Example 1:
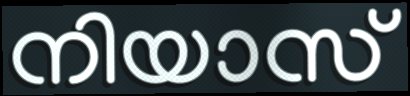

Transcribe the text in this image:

നിയാസ്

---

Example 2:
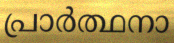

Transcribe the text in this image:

പ്രാർത്ഥനാ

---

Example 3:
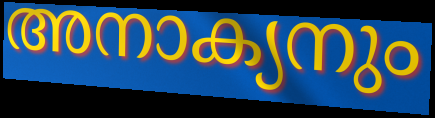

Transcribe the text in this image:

അനാക്യനും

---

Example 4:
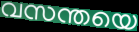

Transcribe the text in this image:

വസന്തയെ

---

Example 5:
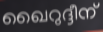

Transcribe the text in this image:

ഖൈറുദ്ദീന്